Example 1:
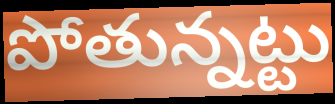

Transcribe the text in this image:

పోతున్నట్టు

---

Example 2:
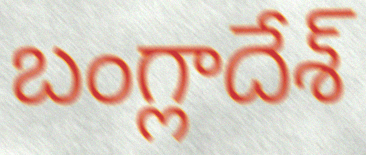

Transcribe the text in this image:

బంగ్లాదేశ్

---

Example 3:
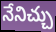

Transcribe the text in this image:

నేనిచ్చు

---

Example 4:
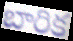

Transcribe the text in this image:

బారిక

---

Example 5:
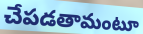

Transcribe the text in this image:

చేపడతామంటూ